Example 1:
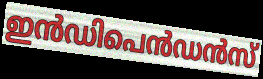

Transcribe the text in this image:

ഇൻഡിപെൻഡൻസ്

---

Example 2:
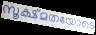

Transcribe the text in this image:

സൂക്ഷ്മതയോടെ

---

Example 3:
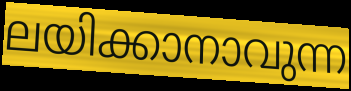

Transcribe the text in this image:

ലയിക്കാനാവുന്ന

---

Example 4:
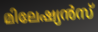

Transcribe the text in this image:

മിലേഷ്യൻസ്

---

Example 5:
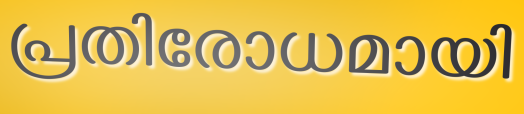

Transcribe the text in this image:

പ്രതിരോധമായി